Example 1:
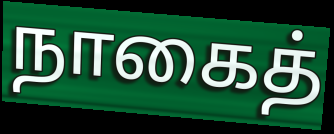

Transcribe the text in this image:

நாகைத்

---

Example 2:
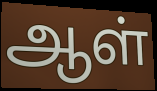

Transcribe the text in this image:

ஆள்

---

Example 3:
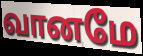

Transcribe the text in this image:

வானமே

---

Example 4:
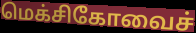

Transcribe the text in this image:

மெக்சிகோவைச்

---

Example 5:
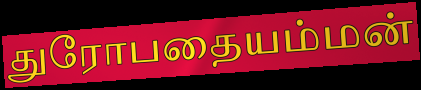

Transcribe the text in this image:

துரோபதையம்மன்